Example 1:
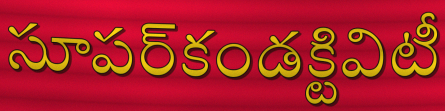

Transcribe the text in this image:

సూపర్‌కండక్టివిటీ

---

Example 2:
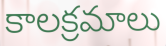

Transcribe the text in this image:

కాలక్రమాలు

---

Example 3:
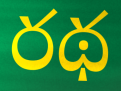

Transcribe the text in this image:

రథ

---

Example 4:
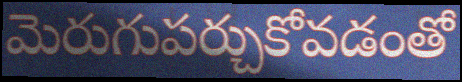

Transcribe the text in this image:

మెరుగుపర్చుకోవడంతో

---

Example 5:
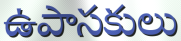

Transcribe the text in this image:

ఉపాసకులు